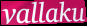
vallaku